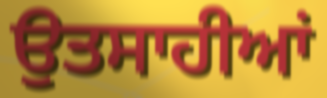
ਉਤਸਾਹੀਆਂ